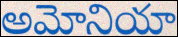
అమోనియా